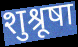
शुश्रूषा